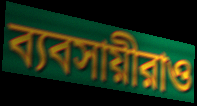
ব্যবসায়ীরাও